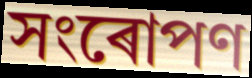
সংৰোপণ